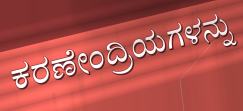
ಕರಣೇಂದ್ರಿಯಗಳನ್ನು